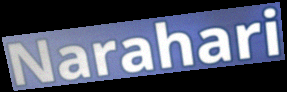
Narahari